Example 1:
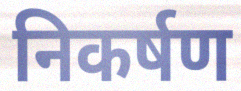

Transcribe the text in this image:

निकर्षण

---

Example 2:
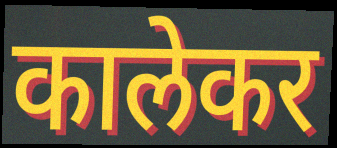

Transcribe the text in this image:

कालेकर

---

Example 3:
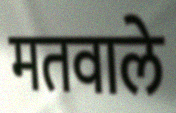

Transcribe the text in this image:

मतवाले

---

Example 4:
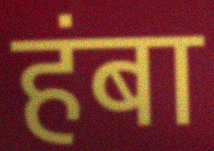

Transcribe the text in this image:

हंबा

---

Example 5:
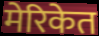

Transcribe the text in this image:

मेरिकेत